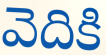
వెదికి